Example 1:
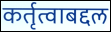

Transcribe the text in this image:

कर्तृत्वाबद्दल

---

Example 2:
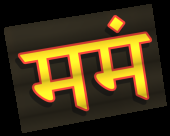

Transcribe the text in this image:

ममं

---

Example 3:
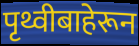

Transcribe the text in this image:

पृथ्वीबाहेरून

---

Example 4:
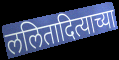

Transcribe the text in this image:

ललितादित्याच्या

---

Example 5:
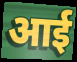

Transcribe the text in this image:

आई